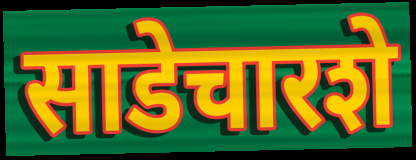
साडेचारशे